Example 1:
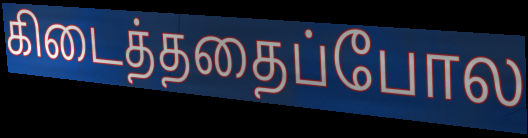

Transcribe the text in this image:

கிடைத்ததைப்போல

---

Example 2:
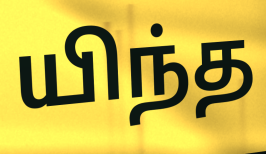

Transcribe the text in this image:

யிந்த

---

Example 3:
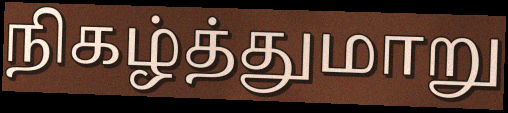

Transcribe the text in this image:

நிகழ்த்துமாறு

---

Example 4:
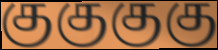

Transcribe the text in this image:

குகுகுகு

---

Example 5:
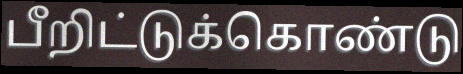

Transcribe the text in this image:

பீறிட்டுக்கொண்டு